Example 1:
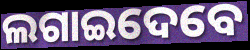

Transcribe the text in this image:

ଲଗାଇଦେବେ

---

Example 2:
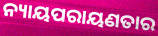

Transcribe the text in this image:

ନ୍ୟାୟପରାୟଣତାର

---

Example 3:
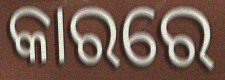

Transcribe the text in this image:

କାରରେ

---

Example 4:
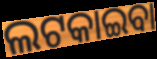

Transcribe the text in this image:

ଲଟକାଇବା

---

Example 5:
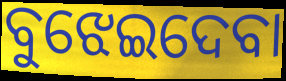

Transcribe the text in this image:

ବୁଝେଇଦେବା